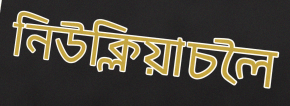
নিউক্লিয়াচলৈ